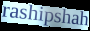
rashipshah